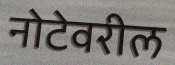
नोटेवरील